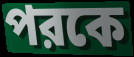
পরকে